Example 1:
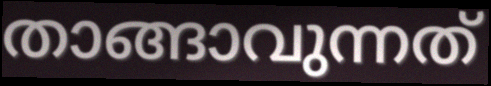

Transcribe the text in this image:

താങ്ങാവുന്നത്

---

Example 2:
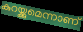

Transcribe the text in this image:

കുറയ്ക്കുമെന്നാണ്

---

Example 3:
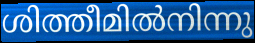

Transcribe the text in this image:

ശിത്തീമിൽനിന്നു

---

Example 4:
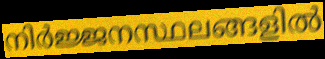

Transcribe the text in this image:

നിർജ്ജനസ്ഥലങ്ങളിൽ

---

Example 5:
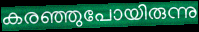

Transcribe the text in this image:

കരഞ്ഞുപോയിരുന്നു